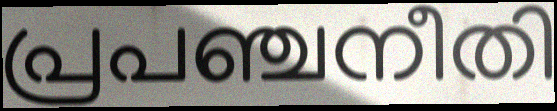
പ്രപഞ്ചനീതി